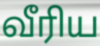
வீரிய